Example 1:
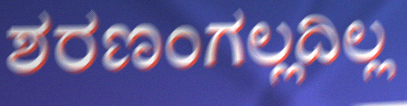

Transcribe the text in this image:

ಶರಣಂಗಲ್ಲದಿಲ್ಲ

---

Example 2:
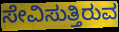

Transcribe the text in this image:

ಸೇವಿಸುತ್ತಿರುವ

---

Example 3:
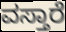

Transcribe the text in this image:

ವಸ್ತಾರೆ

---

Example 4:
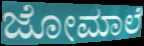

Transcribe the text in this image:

ಜೋಮಾಲೆ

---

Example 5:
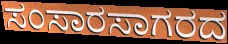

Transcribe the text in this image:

ಸಂಸಾರಸಾಗರದ